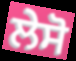
ਲੇਸੋ